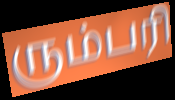
ரும்பரி